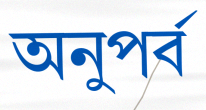
অনুপর্ব